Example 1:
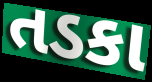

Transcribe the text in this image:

તડકા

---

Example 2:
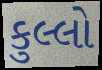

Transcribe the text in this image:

કુલ્લો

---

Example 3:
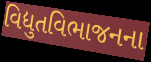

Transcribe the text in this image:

વિદ્યુતવિભાજનના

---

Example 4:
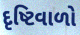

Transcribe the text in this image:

દૃષ્ટિવાળો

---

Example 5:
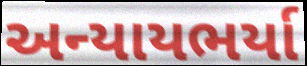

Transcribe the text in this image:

અન્યાયભર્યા